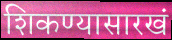
शिकण्यासारखं